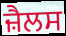
ਜ਼ੈਲਸ